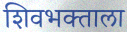
शिवभक्ताला